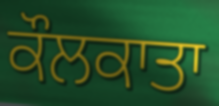
ਕੌਲਕਾਤਾ